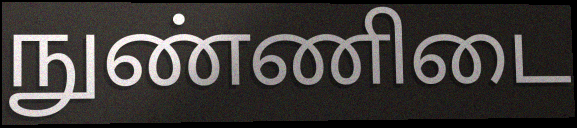
நுண்ணிடை